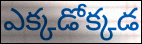
ఎక్కడోక్కడ